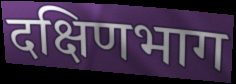
दक्षिणभाग